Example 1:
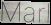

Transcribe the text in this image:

Marl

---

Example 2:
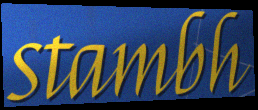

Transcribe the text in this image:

stambh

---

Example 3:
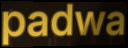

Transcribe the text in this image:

padwa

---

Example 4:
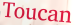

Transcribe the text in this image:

Toucan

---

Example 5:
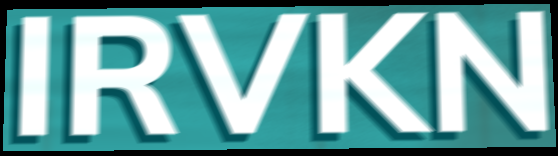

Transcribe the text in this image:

IRVKN